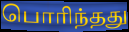
பொரிந்தது